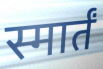
स्मार्तं